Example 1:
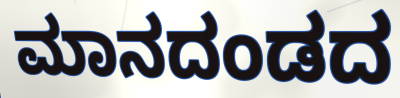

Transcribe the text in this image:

ಮಾನದಂಡದ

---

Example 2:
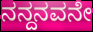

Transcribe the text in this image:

ನನ್ದನವನೇ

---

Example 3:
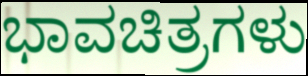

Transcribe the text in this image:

ಭಾವಚಿತ್ರಗಳು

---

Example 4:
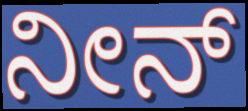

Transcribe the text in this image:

ನೀನ್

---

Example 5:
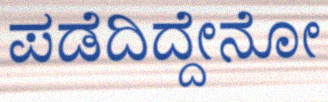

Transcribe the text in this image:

ಪಡೆದಿದ್ದೇನೋ